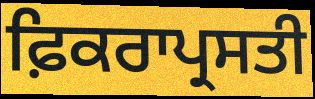
ਫ਼ਿਕਰਾਪ੍ਰਸਤੀ